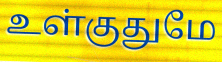
உள்குதுமே